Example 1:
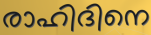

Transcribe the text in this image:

രാഹിദിനെ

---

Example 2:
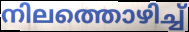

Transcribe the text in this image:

നിലത്തൊഴിച്ച്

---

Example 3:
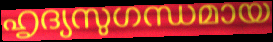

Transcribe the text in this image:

ഹൃദ്യസുഗന്ധമായ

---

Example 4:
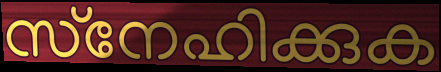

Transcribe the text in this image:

സ്‌നേഹിക്കുക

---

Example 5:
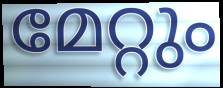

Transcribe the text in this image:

മേറ്റും